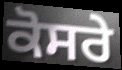
ਕੋਸਰੇ